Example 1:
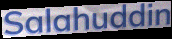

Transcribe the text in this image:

Salahuddin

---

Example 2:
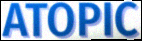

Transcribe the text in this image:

ATOPIC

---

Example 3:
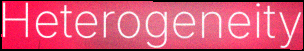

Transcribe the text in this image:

Heterogeneity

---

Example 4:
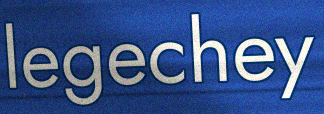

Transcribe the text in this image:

legechey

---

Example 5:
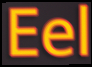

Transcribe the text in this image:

Eel